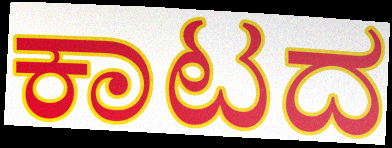
ಕಾಟದ